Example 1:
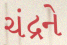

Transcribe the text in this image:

ચંદ્રને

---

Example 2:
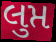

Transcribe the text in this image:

લુપ્ત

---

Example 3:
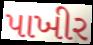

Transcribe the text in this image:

પાખીર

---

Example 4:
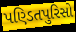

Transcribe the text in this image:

પણ્ડિતપુરિસો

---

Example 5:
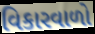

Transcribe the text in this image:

વિકારવાળો